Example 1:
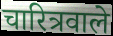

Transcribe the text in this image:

चारित्रवाले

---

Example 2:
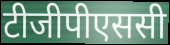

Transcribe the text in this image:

टीजीपीएससी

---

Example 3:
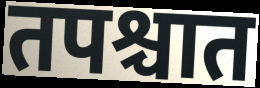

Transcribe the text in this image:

तपश्चात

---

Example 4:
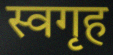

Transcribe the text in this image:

स्वगृह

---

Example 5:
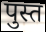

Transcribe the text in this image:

पुस्त